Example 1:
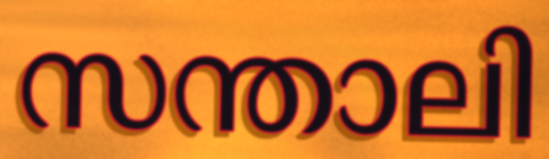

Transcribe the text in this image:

സന്താലി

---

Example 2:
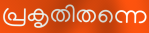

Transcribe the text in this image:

പ്രകൃതിതന്നെ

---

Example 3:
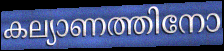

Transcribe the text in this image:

കല്യാണത്തിനോ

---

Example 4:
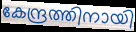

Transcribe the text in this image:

കേന്ദ്രത്തിനായി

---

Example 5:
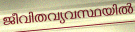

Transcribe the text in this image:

ജീവിതവ്യവസ്ഥയിൽ